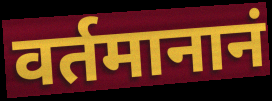
वर्तमानानं